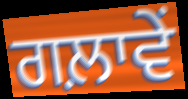
ਗਲ਼ਾਵੇਂ